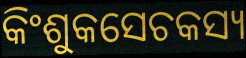
କିଂଶୁକସେଚକସ୍ୟ